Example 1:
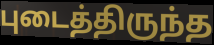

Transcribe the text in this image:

புடைத்திருந்த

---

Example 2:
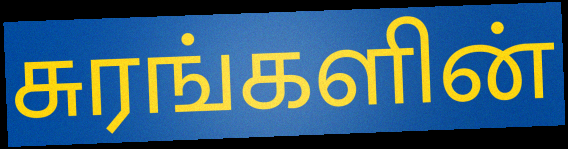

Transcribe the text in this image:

சுரங்களின்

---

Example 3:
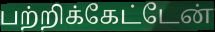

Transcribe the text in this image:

பற்றிக்கேட்டேன்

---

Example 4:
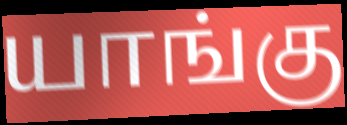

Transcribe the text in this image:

யாங்கு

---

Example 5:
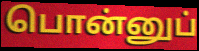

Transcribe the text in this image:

பொன்னுப்